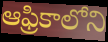
ఆఫ్రికాలోని